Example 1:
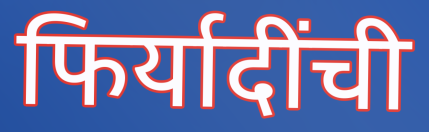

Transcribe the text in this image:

फिर्यादींची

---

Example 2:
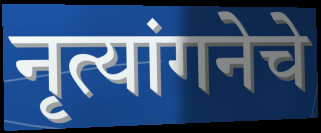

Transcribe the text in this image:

नृत्यांगनेचे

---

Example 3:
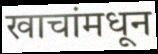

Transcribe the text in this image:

खाचांमधून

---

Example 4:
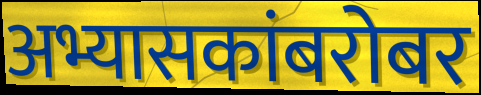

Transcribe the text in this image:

अभ्यासकांबरोबर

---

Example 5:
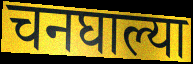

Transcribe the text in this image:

चनघाल्या